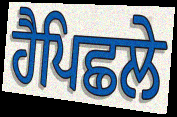
ਹੈਪਿਛਲੇ